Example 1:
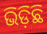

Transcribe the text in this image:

ଭିଡ଼ିଛି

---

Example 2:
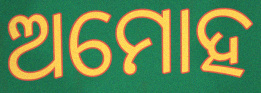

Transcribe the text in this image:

ଅମୋହ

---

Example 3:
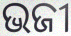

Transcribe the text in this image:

ଭଜୀ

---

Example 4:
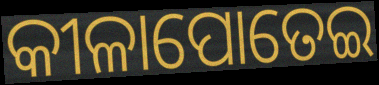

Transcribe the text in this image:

କୀଳାପୋତେଇ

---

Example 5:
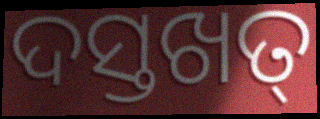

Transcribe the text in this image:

ଦସ୍ତଖତ୍